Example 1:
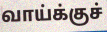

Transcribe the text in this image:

வாய்க்குச்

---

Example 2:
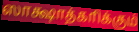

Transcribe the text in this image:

ஸாக்ஷாத்கரிக்கும்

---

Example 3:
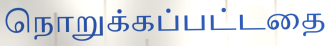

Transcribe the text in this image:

நொறுக்கப்பட்டதை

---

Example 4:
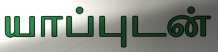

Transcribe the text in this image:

யாப்புடன்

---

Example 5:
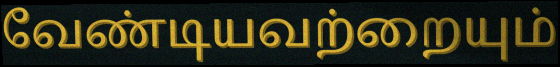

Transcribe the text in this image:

வேண்டியவற்றையும்